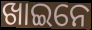
ଖାଇନେ